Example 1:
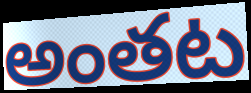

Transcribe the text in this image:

అంతట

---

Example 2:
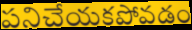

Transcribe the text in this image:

పనిచేయకపోవడం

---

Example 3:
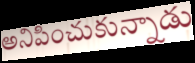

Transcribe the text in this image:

అనిపించుకున్నాడు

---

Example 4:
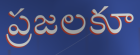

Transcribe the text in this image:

ప్రజలకూ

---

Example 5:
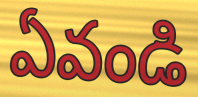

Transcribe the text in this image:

ఏవండి